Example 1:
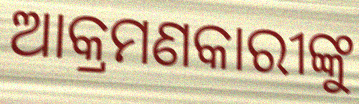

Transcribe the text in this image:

ଆକ୍ରମଣକାରୀଙ୍କୁ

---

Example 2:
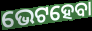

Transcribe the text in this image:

ଭେଟହେବା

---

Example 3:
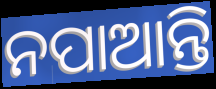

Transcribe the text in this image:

ନପାଆନ୍ତି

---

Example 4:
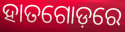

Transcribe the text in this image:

ହାତଗୋଡ଼ରେ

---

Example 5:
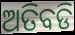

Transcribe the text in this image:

ଅତିବଡି